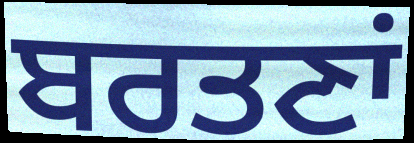
ਬਰਤਣਾਂ